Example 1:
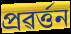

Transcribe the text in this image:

প্ৰৱৰ্ত্তন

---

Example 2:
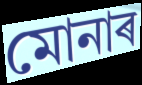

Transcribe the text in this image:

মোনাৰ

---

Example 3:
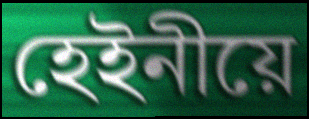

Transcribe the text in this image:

হেইনীয়ে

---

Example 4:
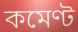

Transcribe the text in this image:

কমেণ্ট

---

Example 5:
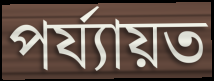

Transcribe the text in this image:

পৰ্য্যায়ত